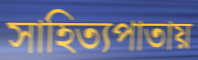
সাহিত্যপাতায়